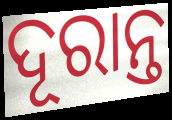
ଦୂରାନ୍ତ